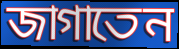
জাগাতেন